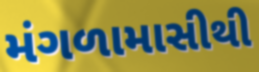
મંગળામાસીથી